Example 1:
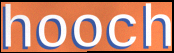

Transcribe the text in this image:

hooch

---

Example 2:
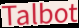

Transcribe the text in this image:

Talbot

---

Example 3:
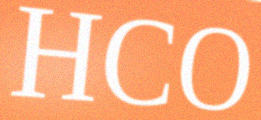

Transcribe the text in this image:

HCO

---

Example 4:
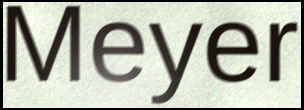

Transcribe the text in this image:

Meyer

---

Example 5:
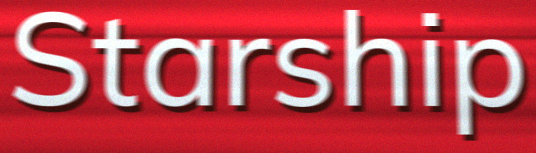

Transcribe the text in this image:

Starship